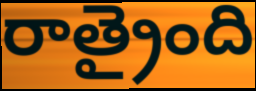
రాత్రైంది